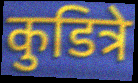
कुडित्रे